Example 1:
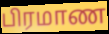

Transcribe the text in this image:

பிரமாண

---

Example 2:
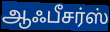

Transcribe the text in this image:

ஆஃபீசர்ஸ்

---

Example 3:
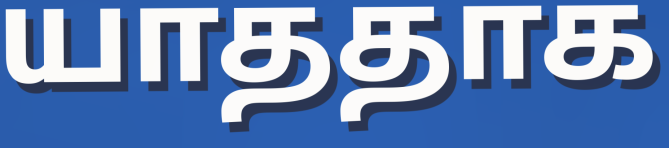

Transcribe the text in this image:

யாததாக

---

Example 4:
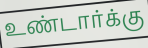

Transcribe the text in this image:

உண்டார்க்கு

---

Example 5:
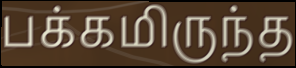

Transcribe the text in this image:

பக்கமிருந்த